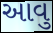
આવુ